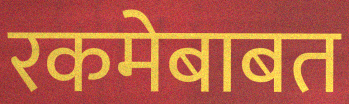
रकमेबाबत